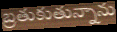
బ్రతుకుతున్నాను